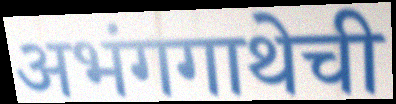
अभंगगाथेची